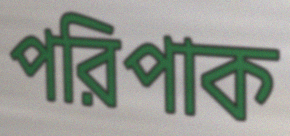
পরিপাক